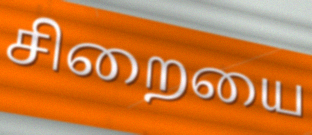
சிறையை